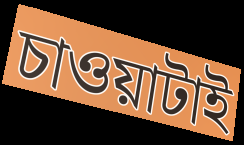
চাওয়াটাই